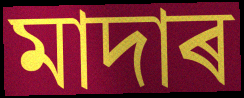
মাদাৰ